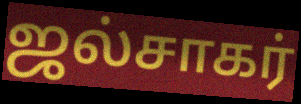
ஜல்சாகர்